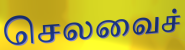
செலவைச்